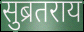
सुब्रतराय